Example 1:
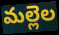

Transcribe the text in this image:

మల్లెల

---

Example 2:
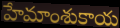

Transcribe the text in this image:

హేమాంశుకాయ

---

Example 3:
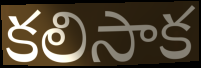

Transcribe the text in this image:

కలిసాక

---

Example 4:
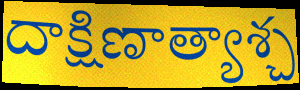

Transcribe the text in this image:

దాక్షిణాత్యాశ్చ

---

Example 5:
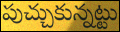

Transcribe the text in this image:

పుచ్చుకున్నట్టు